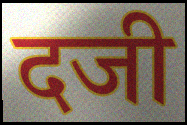
दजी